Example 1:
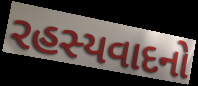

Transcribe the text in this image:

રહસ્યવાદનો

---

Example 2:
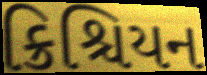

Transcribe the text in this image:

ક્રિશ્ચિયન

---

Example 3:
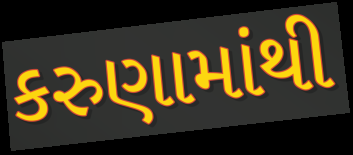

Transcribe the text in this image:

કરુણામાંથી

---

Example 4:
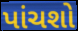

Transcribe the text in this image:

પાંચશો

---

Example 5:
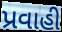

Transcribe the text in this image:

પ્રવાહી